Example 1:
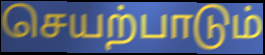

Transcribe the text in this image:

செயற்பாடும்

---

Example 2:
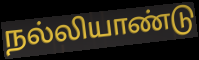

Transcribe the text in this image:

நல்லியாண்டு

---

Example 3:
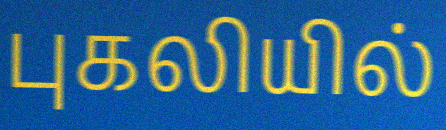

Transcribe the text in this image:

புகலியில்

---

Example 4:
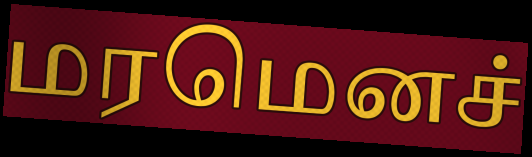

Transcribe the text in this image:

மரமெனச்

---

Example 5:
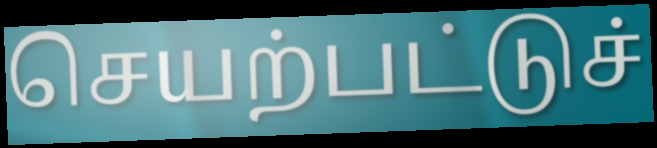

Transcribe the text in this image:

செயற்பட்டுச்